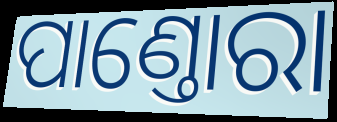
ପାଣ୍ତୋରା